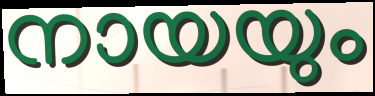
നായയും